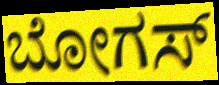
ಬೋಗಸ್